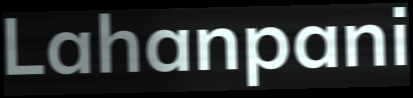
Lahanpani